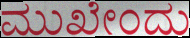
ಮುಖೇಂದು